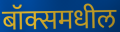
बॉक्समधील